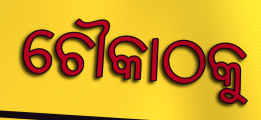
ଚୌକାଠକୁ